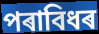
পৰাবিধৰ